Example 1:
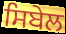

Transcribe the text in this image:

ਸਿਬੇਲ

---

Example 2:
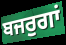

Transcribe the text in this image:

ਬਜਰੁਗਾਂ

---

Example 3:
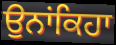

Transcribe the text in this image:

ਉਨਾਂਕਿਹਾ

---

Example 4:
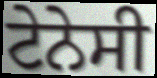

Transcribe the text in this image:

ਟੇਨੇਸੀ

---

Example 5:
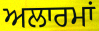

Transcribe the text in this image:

ਅਲਾਰਮਾਂ